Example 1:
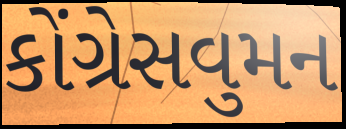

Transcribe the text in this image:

કોંગ્રેસવુમન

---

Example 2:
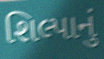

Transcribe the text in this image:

શિલ્પાનું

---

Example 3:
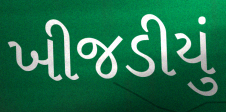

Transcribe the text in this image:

ખીજડીયું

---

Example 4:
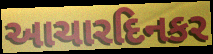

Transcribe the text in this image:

આચારદિનકર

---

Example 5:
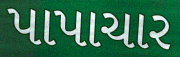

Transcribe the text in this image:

પાપાચાર